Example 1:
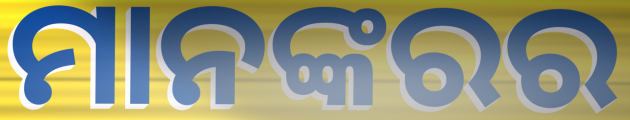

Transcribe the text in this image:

ମାନଙ୍କରର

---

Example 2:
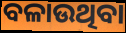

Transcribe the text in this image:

ବଳାଉଥିବା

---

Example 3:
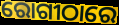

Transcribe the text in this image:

ରୋଗୀଠାରେ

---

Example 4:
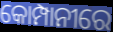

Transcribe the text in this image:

କୋମ୍ପାନୀରେ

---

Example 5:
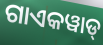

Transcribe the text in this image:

ଗାଏକୱାଡ୍